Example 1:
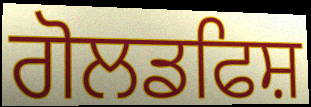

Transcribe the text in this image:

ਗੋਲਡਫਿਸ਼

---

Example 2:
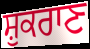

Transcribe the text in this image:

ਸ਼ੁਕਰਾਣ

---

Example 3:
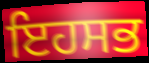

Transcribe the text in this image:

ਇਹਸਭ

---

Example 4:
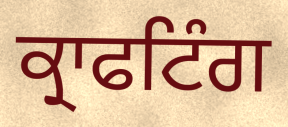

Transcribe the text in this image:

ਕ੍ਰਾਫਟਿੰਗ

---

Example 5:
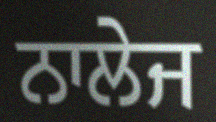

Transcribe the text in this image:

ਨਾਲੇਜ